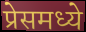
प्रेसमध्ये